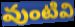
వుంటివి